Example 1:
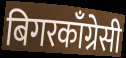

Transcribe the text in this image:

बिगरकाँग्रेसी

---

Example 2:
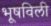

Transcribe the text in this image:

भूषविली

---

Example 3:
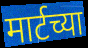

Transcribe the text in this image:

मार्टच्या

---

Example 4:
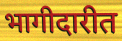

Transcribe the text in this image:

भागीदारीत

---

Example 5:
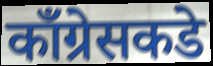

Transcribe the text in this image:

काँग्रेसकडे